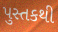
પુસ્તકથી